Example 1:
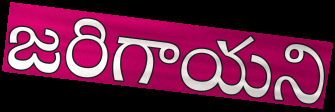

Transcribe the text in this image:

జరిగాయని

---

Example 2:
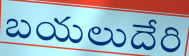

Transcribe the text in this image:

బయలుదేరి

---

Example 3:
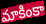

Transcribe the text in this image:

మాకింకా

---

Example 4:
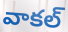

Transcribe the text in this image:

వాకల్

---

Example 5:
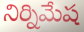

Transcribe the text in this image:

నిర్నిమేష